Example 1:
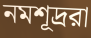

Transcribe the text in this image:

নমশূদ্ররা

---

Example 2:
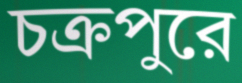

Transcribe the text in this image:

চক্রপুরে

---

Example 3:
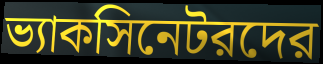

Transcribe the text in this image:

ভ্যাকসিনেটরদের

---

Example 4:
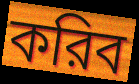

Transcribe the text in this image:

করিব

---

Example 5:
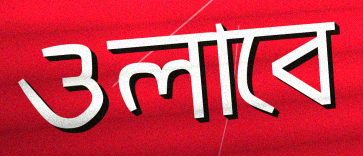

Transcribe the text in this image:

ওলাবে